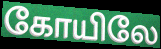
கோயிலே